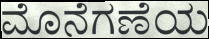
ಮೊನೆಗಣೆಯ